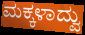
ಮಕ್ಕಳಾದ್ವು